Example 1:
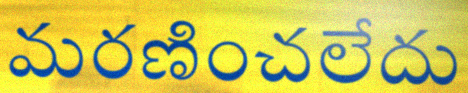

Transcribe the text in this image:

మరణించలేదు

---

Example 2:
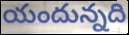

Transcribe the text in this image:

యందున్నది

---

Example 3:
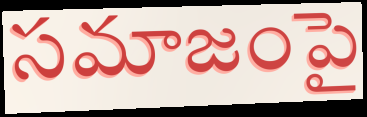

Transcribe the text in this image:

సమాజంపై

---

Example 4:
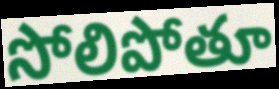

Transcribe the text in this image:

సోలిపోతూ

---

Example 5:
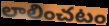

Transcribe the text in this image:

లాలించటం